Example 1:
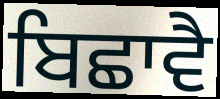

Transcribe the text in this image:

ਬਿਛਾਵੈ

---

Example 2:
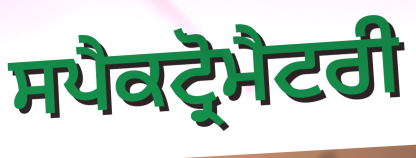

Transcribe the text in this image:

ਸਪੈਕਟ੍ਰੋਮੈਟਰੀ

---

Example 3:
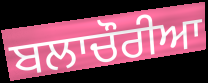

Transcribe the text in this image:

ਬਲਾਚੌਰੀਆ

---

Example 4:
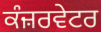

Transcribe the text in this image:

ਕੰਜ਼ਰਵੇਟਰ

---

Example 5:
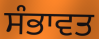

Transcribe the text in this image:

ਸੰਭਾਵਤ